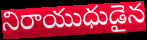
నిరాయుధుడైన